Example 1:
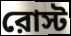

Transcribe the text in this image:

রোস্ট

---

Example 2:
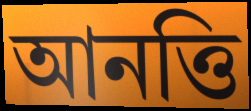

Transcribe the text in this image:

আনত্তি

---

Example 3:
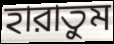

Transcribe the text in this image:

হারাতুম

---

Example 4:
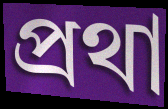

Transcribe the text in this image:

প্রথা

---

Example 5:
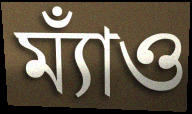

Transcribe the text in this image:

ম্যাঁও